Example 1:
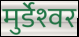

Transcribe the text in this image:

मुर्डेश्वर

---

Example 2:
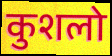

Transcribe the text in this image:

कुशलो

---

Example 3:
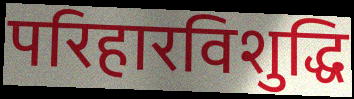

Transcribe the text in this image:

परिहारविशुद्धि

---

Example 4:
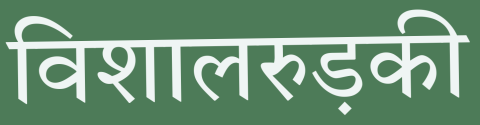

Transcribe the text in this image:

विशालरुड़की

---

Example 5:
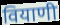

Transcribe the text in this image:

वियाणी